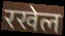
रखेल